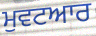
ਮੁਵਟਆਰ